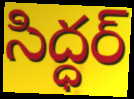
సిద్ధర్